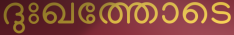
ദുഃഖത്തോടെ